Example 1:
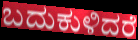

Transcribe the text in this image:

ಬದುಕುಳಿದರೆ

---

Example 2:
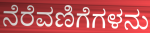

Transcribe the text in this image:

ನೆರೆವಣಿಗೆಗಳನು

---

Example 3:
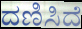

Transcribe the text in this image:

ದಣಿಸಿದೆ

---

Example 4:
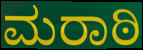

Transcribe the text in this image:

ಮರಾಠಿ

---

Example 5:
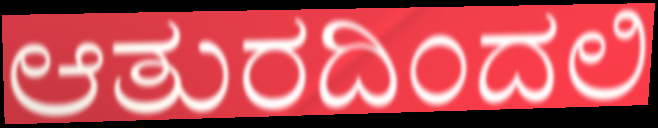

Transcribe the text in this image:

ಆತುರದಿಂದಲಿ